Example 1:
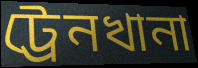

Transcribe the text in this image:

ট্রেনখানা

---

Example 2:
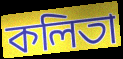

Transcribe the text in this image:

কলিতা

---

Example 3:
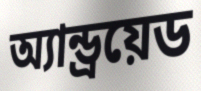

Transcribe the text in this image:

অ্যান্ড্রয়েড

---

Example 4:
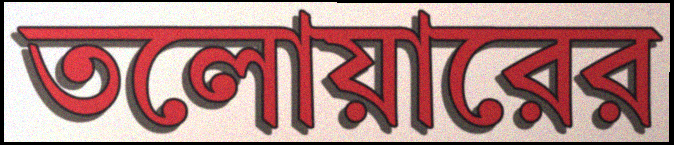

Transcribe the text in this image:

তলোয়ারের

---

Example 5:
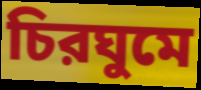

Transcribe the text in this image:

চিরঘুমে